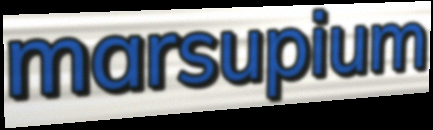
marsupium